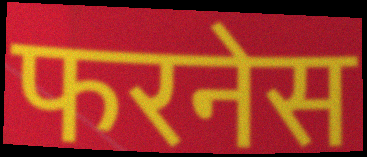
फरनेस